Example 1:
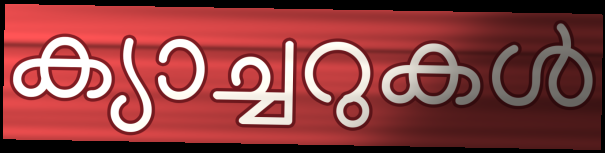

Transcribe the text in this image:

ക്യാച്ചറുകൾ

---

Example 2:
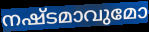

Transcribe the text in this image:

നഷ്ടമാവുമോ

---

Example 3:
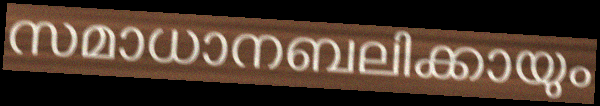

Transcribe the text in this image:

സമാധാനബലിക്കായും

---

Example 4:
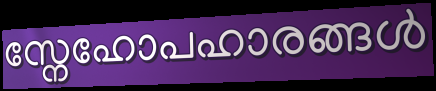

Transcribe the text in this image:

സ്നേഹോപഹാരങ്ങൾ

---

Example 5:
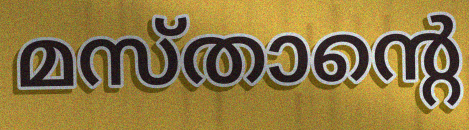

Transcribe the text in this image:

മസ്താന്റെ